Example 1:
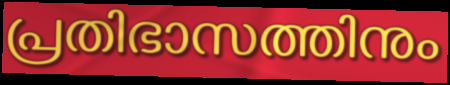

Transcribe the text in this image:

പ്രതിഭാസത്തിനും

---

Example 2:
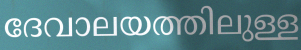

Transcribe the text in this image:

ദേവാലയത്തിലുള്ള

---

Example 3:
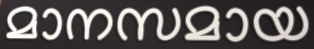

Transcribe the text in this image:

മാനസമായ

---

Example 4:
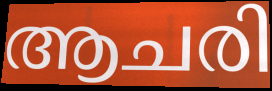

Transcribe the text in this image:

ആചരി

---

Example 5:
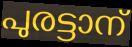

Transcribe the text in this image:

പുരട്ടാന്